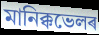
মানিক্কভেলৰ